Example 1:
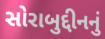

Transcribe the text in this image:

સોરાબુદ્દીનનું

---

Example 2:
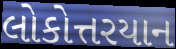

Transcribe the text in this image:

લોકોત્તરયાન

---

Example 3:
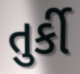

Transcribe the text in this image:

તુર્કી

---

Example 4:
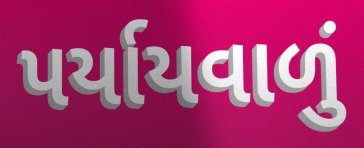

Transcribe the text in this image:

પર્યાયવાળું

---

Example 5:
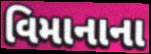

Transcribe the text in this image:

વિમાનાના